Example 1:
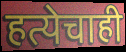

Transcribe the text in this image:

हत्येचाही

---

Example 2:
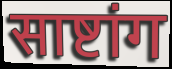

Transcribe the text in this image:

साष्टांग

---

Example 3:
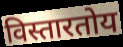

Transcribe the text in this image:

विस्तारतोय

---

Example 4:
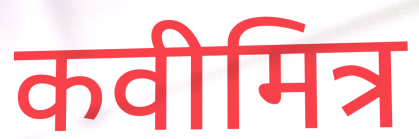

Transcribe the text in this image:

कवीमित्र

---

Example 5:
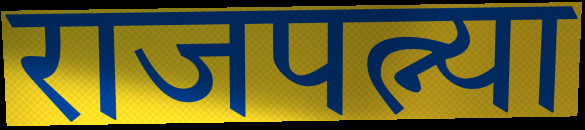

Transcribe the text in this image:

राजपत्न्या